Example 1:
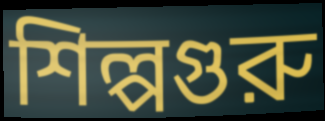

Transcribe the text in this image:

শিল্পগুরু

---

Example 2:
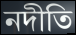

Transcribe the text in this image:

নদীতি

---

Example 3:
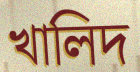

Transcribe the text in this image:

খালিদ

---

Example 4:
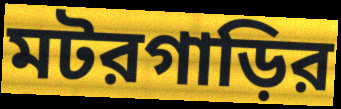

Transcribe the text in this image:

মটরগাড়ির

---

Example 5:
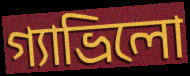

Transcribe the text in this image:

গ্যাভ্রিলো